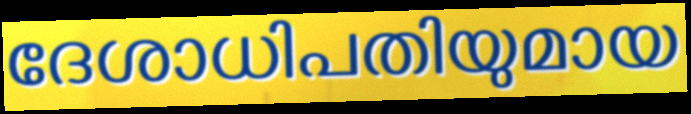
ദേശാധിപതിയുമായ